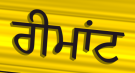
ਰੀਮਾਂਟ